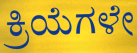
ಕ್ರಿಯೆಗಳೇ